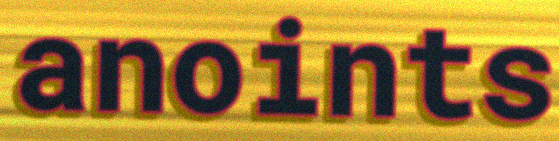
anoints